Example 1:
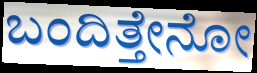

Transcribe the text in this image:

ಬಂದಿತ್ತೇನೋ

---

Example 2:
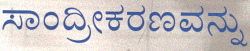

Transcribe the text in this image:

ಸಾಂದ್ರೀಕರಣವನ್ನು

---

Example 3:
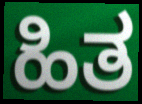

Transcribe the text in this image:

ಹಿತ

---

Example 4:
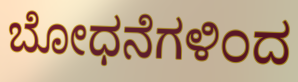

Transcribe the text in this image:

ಬೋಧನೆಗಳಿಂದ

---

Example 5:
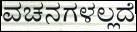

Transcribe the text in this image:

ವಚನಗಳಲ್ಲದೆ